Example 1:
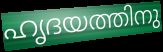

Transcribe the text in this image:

ഹൃദയത്തിനു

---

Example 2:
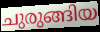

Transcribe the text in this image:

ചുരുങ്ങിയ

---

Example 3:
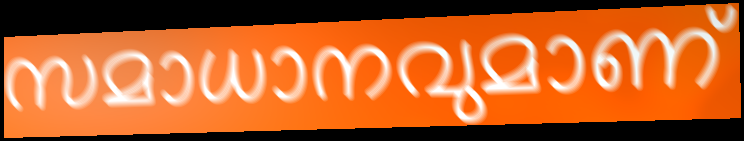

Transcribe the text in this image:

സമാധാനവുമാണ്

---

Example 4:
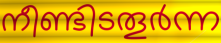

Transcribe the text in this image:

നീണ്ടിടതൂർന്ന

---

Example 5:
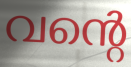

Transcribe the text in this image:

വന്റെ